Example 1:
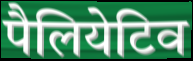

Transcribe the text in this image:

पैलियेटिव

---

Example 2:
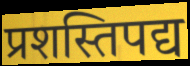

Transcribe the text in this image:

प्रशस्तिपद्य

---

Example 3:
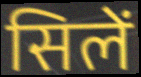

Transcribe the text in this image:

सिलें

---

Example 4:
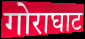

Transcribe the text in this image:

गोराघाट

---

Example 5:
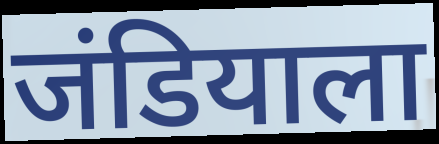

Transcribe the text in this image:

जंडियाला